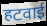
हटवाई